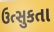
ઉત્સુકતા